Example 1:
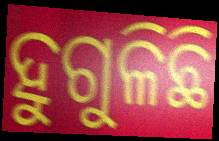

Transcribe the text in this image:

ହୁଗୁଳିଛି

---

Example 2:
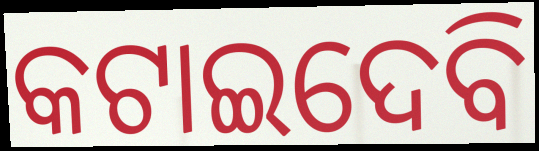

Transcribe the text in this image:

କଟାଇଦେବି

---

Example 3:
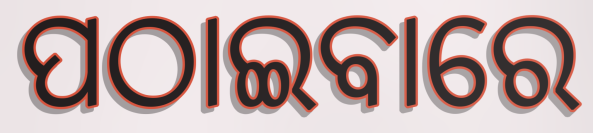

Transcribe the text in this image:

ପଠାଇବାରେ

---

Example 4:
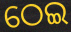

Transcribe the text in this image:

ଠେଇ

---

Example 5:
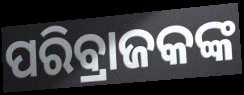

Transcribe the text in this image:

ପରିବ୍ରାଜକଙ୍କ